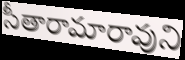
సీతారామారావుని